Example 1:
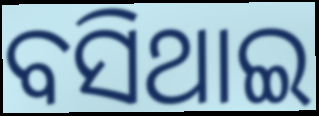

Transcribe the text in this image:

ବସିଥାଇ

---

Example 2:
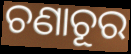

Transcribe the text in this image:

ଚଣାଚୂର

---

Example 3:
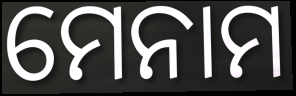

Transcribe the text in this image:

ମେନାମ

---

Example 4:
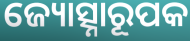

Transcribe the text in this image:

ଜ୍ୟୋତ୍ସ୍ନାରୂପକ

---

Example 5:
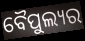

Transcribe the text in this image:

ବୈପୁଲ୍ୟର